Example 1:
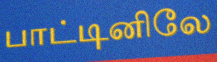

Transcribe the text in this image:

பாட்டினிலே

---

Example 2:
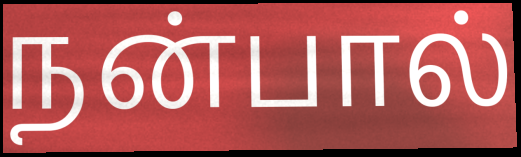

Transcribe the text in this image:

நன்பால்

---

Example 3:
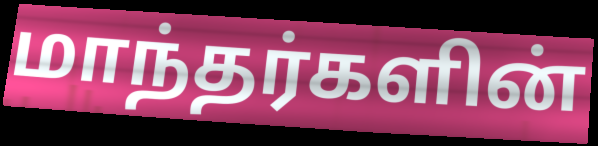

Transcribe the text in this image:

மாந்தர்களின்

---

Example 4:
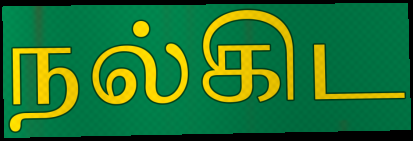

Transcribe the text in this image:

நல்கிட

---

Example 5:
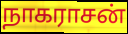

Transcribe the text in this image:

நாகராசன்